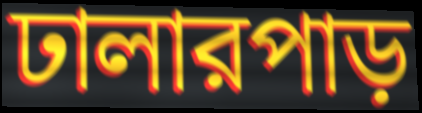
ঢালারপাড়